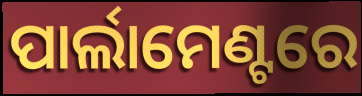
ପାର୍ଲାମେଣ୍ଟରେ